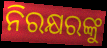
ନିରକ୍ଷରଙ୍କୁ